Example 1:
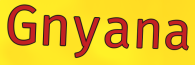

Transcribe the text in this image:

Gnyana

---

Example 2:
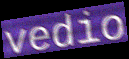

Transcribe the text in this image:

vedio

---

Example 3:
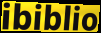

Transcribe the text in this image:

ibiblio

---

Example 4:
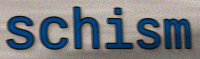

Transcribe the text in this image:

schism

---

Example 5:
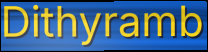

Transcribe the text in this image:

Dithyramb